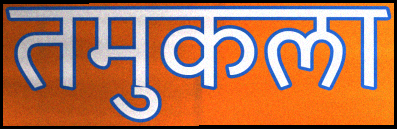
तमुकला